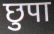
छुपा